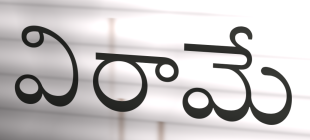
విరామే